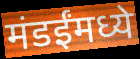
मंडईंमध्ये